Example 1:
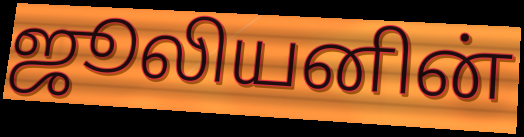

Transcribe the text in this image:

ஜூலியனின்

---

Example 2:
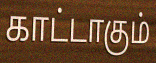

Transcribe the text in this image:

காட்டாகும்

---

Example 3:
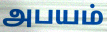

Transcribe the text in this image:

அபயம்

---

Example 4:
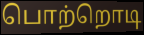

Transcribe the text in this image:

பொற்றொடி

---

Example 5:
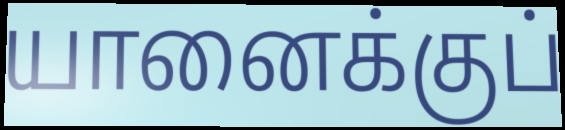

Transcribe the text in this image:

யானைக்குப்